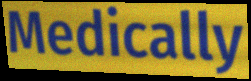
Medically